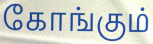
கோங்கும்